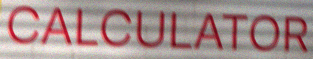
CALCULATOR